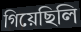
গিয়েছিলি